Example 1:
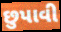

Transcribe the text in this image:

છુપાવી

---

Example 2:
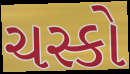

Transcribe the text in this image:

ચસ્કો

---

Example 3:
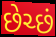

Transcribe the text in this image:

છેચ્છં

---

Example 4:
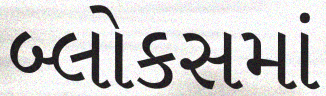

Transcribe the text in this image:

બ્લોકસમાં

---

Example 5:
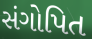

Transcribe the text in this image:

સંગોપિત